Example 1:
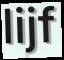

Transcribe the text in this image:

lijf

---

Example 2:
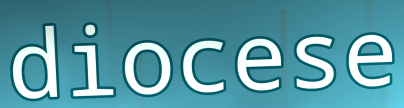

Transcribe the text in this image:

diocese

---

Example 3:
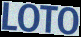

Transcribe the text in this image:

LOTO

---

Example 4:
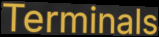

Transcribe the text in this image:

Terminals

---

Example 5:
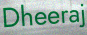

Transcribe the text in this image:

Dheeraj